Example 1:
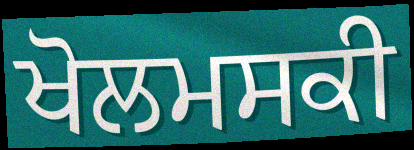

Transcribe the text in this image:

ਖੋਲਮਸਕੀ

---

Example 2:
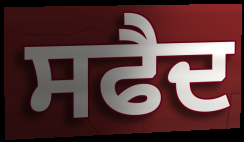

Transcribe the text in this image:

ਸਫੈਦ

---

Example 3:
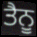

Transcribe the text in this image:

ਤੈਨੂ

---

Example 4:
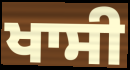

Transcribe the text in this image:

ਖਾਸੀ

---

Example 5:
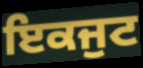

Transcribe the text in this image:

ਇਕਜੁਟ